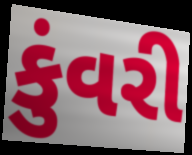
કુંવરી